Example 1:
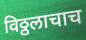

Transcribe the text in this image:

विठ्ठलाचाच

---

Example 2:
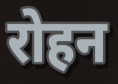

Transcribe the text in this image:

रोहन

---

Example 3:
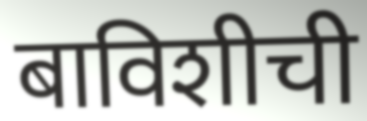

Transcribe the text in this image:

बाविशीची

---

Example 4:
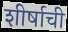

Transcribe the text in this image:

शीर्षाची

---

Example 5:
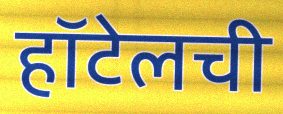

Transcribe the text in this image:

हॉटेलची